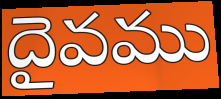
దైవము